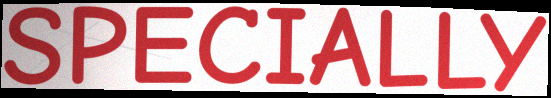
SPECIALLY